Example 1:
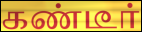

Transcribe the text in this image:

கண்டீர்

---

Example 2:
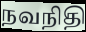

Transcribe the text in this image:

நவநிதி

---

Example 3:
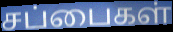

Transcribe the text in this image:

சப்பைகள்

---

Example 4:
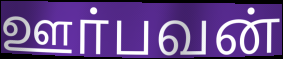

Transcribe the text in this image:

ஊர்பவன்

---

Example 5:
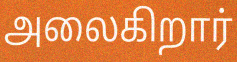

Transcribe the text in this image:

அலைகிறார்